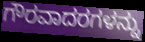
ಗೌರವಾದರಗಳನ್ನು